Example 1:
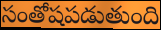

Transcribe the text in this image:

సంతోషపడుతుంది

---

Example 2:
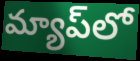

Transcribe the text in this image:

మ్యాప్‌లో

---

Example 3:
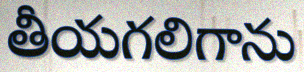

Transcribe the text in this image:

తీయగలిగాను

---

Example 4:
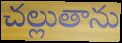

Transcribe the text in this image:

చల్లుతాను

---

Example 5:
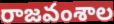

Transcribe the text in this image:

రాజవంశాల